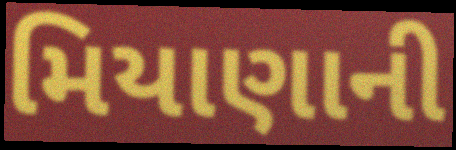
મિયાણાની